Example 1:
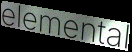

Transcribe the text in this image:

elemental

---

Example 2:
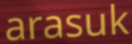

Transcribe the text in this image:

arasuk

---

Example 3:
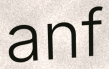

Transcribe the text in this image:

anf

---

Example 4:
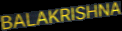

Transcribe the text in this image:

BALAKRISHNA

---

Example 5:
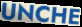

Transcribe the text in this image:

UNCHE